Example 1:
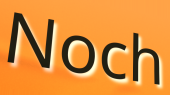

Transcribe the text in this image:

Noch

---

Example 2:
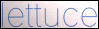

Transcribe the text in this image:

lettuce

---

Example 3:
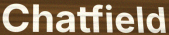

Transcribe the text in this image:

Chatfield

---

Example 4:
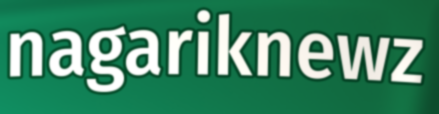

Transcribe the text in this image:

nagariknewz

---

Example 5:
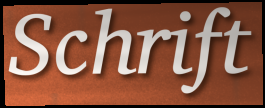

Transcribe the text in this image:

Schrift